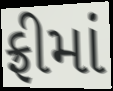
ફ્રીમાં